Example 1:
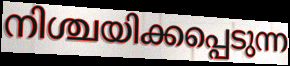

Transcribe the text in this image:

നിശ്ചയിക്കപ്പെടുന്ന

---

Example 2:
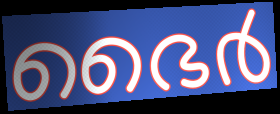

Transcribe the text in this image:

ഭൈർ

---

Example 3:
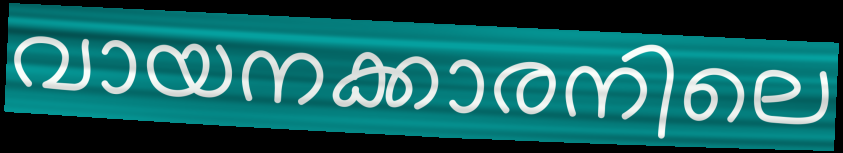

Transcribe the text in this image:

വായനക്കാരനിലെ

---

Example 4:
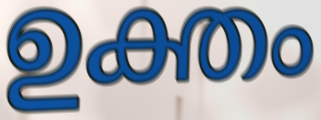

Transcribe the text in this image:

ഉക്തം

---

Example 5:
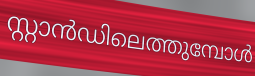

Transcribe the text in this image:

സ്റ്റാൻഡിലെത്തുമ്പോൾ